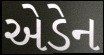
એડેન